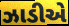
ઝાડીએ